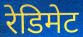
रेडिमेट